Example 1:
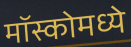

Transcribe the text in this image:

मॉस्कोमध्ये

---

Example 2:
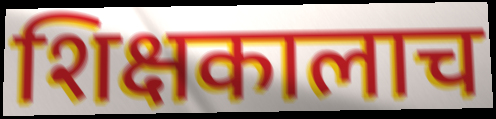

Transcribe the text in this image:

शिक्षकालाच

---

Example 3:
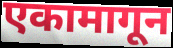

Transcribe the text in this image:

एकामागून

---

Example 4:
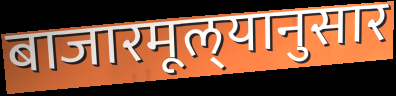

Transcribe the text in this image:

बाजारमूल्यानुसार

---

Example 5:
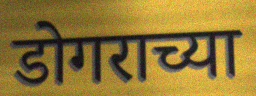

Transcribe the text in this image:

डोगराच्या